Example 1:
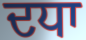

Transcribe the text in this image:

ਦਧਾ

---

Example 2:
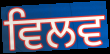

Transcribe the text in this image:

ਵਿਲਵ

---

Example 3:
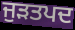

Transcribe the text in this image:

ਜੁੜਤਪਦ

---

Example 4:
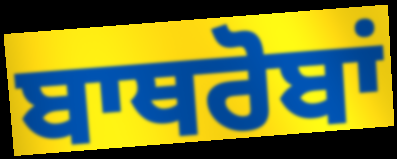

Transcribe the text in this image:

ਬਾਥਰੋਬਾਂ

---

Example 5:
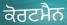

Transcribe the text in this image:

ਕੋਰਟਮੈਨ